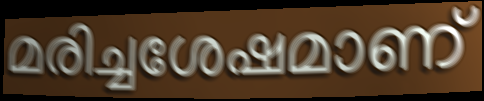
മരിച്ചശേഷമാണ്